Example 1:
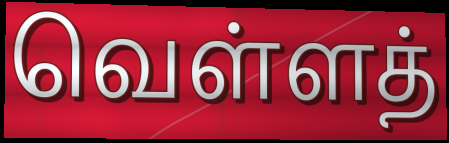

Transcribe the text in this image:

வெள்ளத்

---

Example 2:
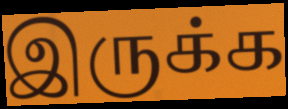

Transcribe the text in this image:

இருக்க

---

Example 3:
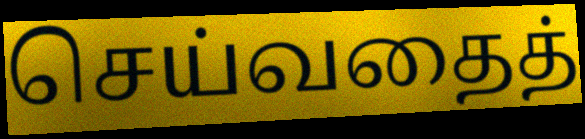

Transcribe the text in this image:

செய்வதைத்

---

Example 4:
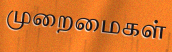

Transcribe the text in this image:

முறைமைகள்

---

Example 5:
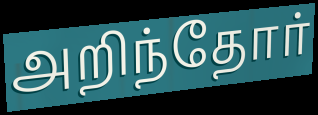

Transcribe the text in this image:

அறிந்தோர்